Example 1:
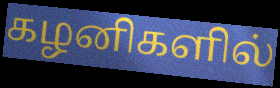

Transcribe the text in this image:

கழனிகளில்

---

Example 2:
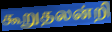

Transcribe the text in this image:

கூறுதலன்றி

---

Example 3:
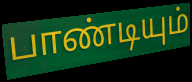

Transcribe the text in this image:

பாண்டியும்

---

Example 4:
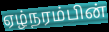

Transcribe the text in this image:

ஏழ்நரம்பின்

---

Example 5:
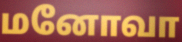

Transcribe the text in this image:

மனோவா